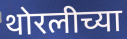
थोरलीच्या